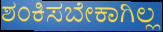
ಶಂಕಿಸಬೇಕಾಗಿಲ್ಲ